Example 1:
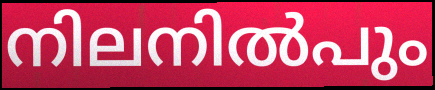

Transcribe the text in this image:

നിലനിൽപും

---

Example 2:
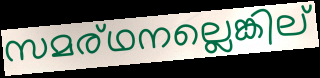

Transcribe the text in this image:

സമര്ഥനല്ലെങ്കില്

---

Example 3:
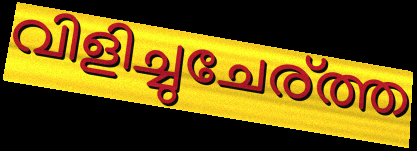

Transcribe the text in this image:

വിളിച്ചുചേര്ത്ത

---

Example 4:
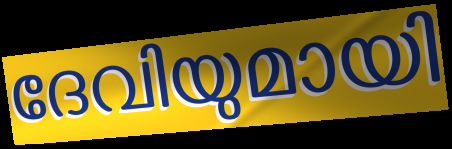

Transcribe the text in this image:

ദേവിയുമായി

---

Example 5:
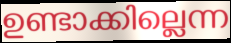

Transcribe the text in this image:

ഉണ്ടാക്കില്ലെന്ന